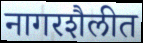
नागरशैलीत